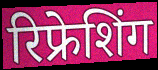
रिफ्रेशिंग